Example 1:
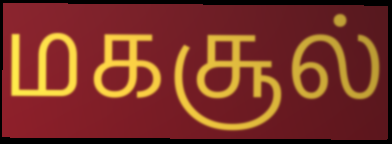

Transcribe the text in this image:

மகசூல்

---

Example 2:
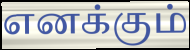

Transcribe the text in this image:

எனக்கும்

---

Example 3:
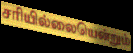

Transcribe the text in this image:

சரியில்லையென்றும்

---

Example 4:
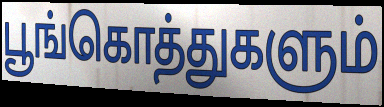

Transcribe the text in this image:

பூங்கொத்துகளும்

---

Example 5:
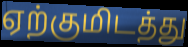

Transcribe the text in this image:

ஏற்குமிடத்து